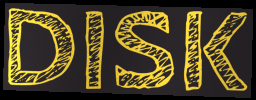
DISK